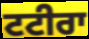
ਟਟੀਰਾ